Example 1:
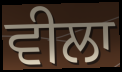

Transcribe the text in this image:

ਵੀਲਾ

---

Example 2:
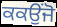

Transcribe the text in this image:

ਕਕਉਂਜੋ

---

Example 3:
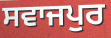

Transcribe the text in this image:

ਸਵਾਜਪੁਰ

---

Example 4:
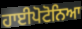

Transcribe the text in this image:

ਹਾਈਪੋਟੋਨਿਆ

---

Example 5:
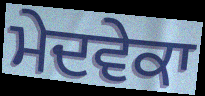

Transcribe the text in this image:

ਮੇਦਵੇਕਾ